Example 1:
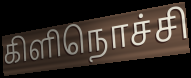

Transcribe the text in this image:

கிளிநொச்சி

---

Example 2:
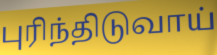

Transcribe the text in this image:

புரிந்திடுவாய்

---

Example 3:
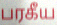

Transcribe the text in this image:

பரகீய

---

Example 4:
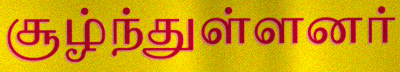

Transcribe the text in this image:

சூழ்ந்துள்ளனர்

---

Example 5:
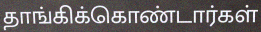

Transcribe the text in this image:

தாங்கிக்கொண்டார்கள்